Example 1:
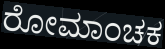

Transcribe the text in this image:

ರೋಮಾಂಚಕ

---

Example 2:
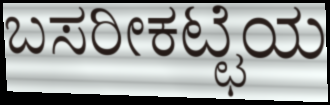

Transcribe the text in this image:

ಬಸರೀಕಟ್ಟೆಯ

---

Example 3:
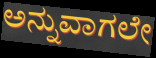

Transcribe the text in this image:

ಅನ್ನುವಾಗಲೇ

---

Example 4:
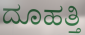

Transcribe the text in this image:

ದೂಹತ್ತಿ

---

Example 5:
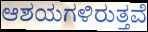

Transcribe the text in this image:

ಆಶಯಗಳಿರುತ್ತವೆ